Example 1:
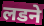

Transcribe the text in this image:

लडने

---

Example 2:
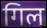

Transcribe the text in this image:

गिल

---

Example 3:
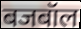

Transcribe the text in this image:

बजबॉल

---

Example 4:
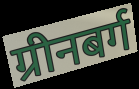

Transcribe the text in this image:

ग्रीनबर्ग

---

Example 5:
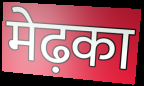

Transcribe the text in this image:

मेढ़का